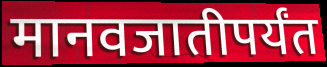
मानवजातीपर्यंत